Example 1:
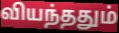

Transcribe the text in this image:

வியந்ததும்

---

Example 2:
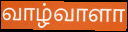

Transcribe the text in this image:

வாழ்வாளா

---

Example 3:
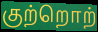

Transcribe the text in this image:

குற்றொற்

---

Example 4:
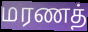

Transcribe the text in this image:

மரணத்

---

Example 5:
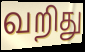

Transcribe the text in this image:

வறிது